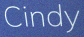
Cindy